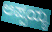
ಅಪ್ಪಯ್ಯ